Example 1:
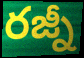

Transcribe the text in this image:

రజ్నీ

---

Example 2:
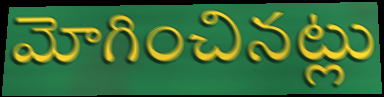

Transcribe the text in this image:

మోగించినట్లు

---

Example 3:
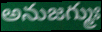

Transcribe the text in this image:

అనుజగ్ముః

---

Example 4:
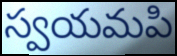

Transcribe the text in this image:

స్వయమపి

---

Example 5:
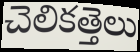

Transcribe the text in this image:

చెలికత్తెలు